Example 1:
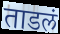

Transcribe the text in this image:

ताडलं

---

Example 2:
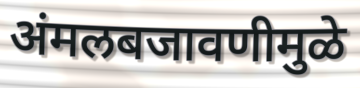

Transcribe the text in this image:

अंमलबजावणीमुळे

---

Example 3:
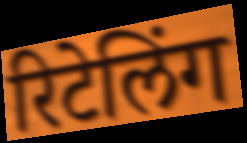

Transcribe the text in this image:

रिटेलिंग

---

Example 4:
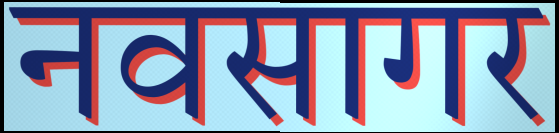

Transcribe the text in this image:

नवसागर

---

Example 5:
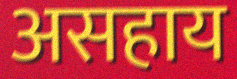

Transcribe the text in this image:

असहाय